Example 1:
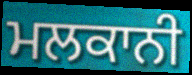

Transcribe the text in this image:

ਮਲਕਾਨੀ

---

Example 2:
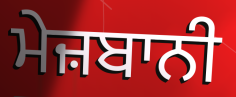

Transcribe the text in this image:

ਮੇਜ਼ਬਾਨੀ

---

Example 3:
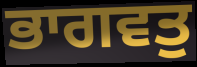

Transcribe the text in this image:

ਭਾਗਵਤੁ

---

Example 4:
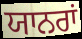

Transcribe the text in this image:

ਯਾਨਰਾਂ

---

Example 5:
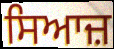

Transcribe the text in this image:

ਸਿਆਜ਼